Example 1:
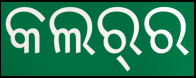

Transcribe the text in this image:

କଲର୍‌ର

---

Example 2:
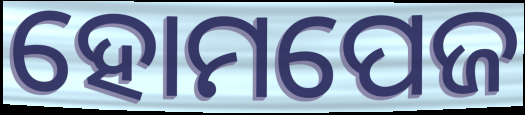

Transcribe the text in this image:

ହୋମପେଜ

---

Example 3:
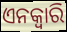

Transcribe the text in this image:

ଏନକ୍ଵାରି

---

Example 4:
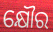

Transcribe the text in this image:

କ୍ଷୌର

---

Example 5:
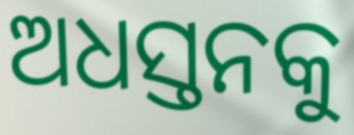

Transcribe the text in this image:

ଅଧସ୍ତନକୁ